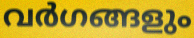
വർഗങ്ങളും